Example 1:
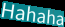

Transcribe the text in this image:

Hahaha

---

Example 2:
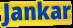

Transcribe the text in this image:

Jankar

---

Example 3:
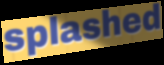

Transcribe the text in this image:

splashed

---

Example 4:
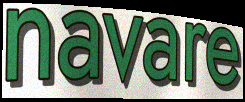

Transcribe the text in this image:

navare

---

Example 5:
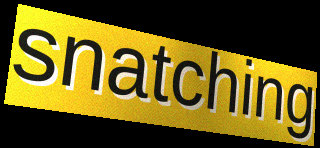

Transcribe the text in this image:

snatching